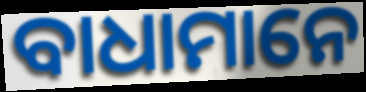
ବାଧାମାନେ